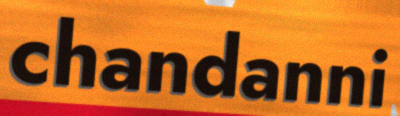
chandanni